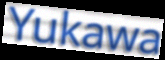
Yukawa